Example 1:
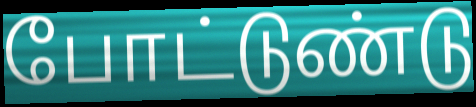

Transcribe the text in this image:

போட்டுண்டு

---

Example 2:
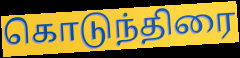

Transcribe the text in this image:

கொடுந்திரை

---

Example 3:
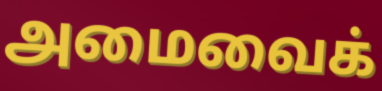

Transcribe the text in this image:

அமைவைக்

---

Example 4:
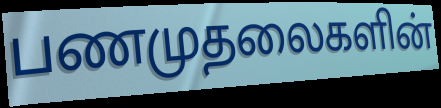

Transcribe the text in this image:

பணமுதலைகளின்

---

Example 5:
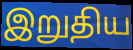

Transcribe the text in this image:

இறுதிய